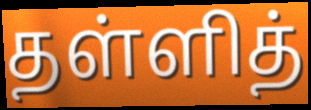
தள்ளித்